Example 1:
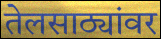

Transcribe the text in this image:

तेलसाठ्यांवर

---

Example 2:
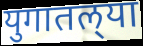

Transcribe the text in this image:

युगातल्या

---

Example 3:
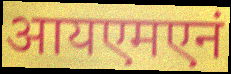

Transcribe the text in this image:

आयएमएनं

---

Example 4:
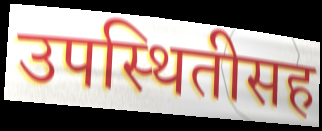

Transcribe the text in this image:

उपस्थितीसह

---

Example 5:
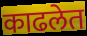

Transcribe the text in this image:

काढलेत